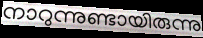
നാറുന്നുണ്ടായിരുന്നു